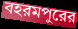
বহরমপুরের